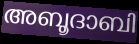
അബൂദാബി